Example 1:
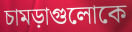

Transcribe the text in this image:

চামড়াগুলোকে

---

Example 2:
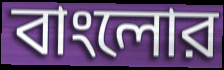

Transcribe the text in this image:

বাংলোর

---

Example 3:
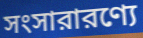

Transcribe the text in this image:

সংসারারণ্যে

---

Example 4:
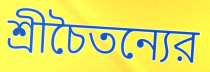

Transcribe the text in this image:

শ্রীচৈতন্যের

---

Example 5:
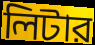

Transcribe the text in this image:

লিটার